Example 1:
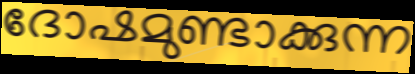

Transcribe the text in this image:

ദോഷമുണ്ടാക്കുന്ന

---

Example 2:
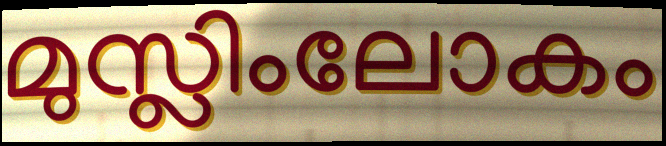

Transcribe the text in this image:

മുസ്ലിംലോകം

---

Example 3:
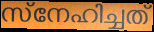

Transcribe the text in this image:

സ്‌നേഹിച്ചത്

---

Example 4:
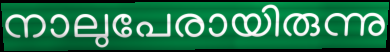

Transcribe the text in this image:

നാലുപേരായിരുന്നു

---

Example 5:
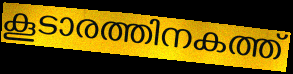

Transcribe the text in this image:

കൂടാരത്തിനകത്ത്